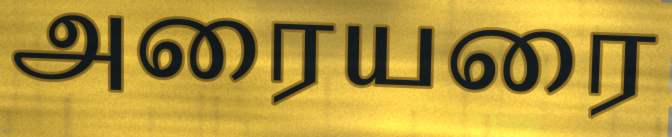
அரையரை